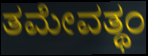
ತಮೇವತ್ಥಂ